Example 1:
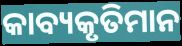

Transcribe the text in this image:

କାବ୍ୟକୃତିମାନ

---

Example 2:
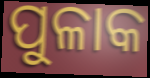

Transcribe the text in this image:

ପୁଳାକ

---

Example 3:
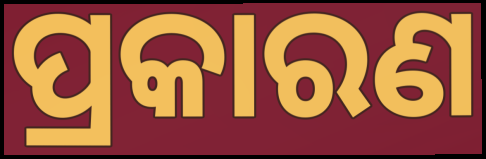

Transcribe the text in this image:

ପ୍ରକାରଣ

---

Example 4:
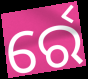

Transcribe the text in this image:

ର୍ରେ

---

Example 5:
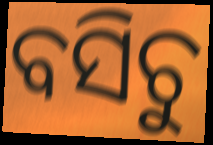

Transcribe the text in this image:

ବସିଚୁ